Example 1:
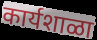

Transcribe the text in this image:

कार्यशाळा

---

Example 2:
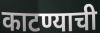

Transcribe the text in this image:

काटण्याची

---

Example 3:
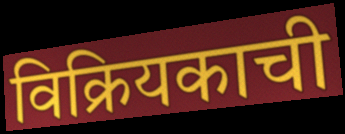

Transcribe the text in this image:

विक्रियकाची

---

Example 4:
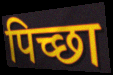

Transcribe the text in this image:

पिच्छा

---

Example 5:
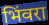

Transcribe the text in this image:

भिंवरा